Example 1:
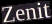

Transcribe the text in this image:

Zenit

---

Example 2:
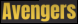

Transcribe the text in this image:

Avengers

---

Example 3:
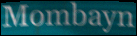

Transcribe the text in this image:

Mombayn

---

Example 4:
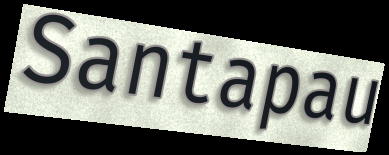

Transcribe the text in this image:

Santapau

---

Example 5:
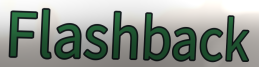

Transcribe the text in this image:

Flashback